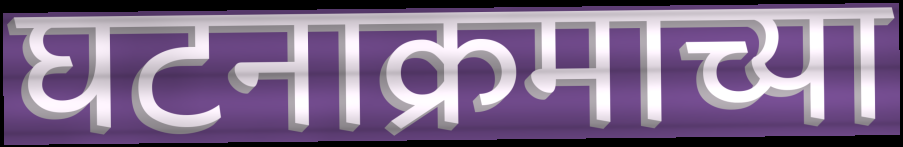
घटनाक्रमाच्या